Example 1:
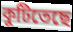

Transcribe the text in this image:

কুটিতেছে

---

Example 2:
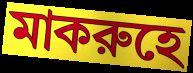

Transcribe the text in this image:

মাকরুহে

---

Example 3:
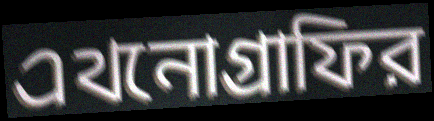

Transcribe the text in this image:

এথনোগ্রাফির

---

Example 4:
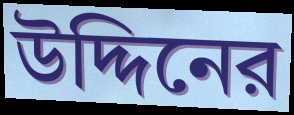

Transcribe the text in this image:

উদ্দিনের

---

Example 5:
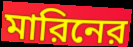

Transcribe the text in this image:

মারিনের